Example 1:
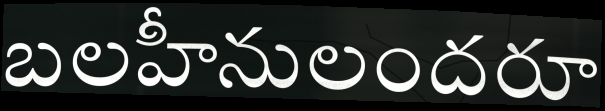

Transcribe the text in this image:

బలహీనులందరూ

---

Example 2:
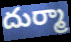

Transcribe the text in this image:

దుర్మా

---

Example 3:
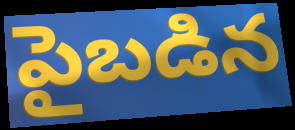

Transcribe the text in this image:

పైబడిన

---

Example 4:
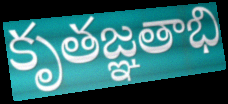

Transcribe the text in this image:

కృతజ్ఞతాభి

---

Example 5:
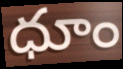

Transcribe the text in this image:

ధూం